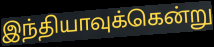
இந்தியாவுக்கென்று